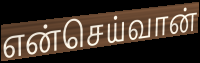
என்செய்வான்